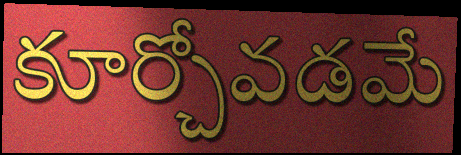
కూర్చోవడమే